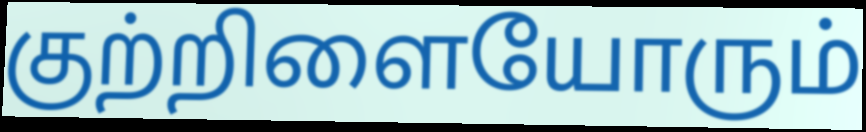
குற்றிளையோரும்